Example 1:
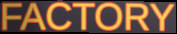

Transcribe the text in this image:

FACTORY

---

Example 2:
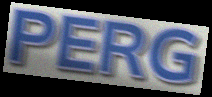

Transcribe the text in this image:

PERG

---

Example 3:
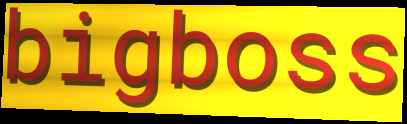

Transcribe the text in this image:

bigboss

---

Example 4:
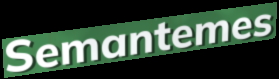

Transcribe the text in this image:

Semantemes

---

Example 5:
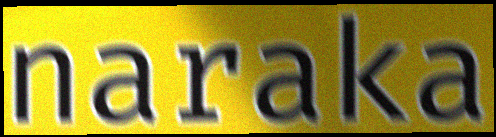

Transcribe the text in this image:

naraka